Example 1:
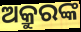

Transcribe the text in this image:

ଅକ୍ରୁରଙ୍କ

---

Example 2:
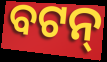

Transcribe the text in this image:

ବଟନ୍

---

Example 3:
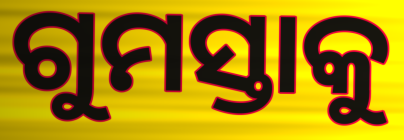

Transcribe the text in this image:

ଗୁମସ୍ତାକୁ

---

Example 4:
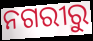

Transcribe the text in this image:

ନଗରୀରୁ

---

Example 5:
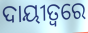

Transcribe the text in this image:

ଦାୟୀତ୍ଵରେ